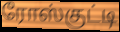
ரோஸ்குட்டி